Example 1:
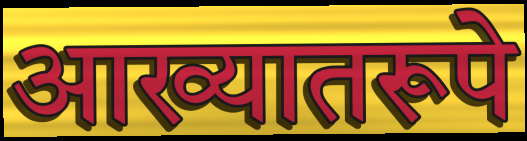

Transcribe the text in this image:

आख्यातरूपे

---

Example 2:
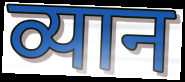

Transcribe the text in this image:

व्यान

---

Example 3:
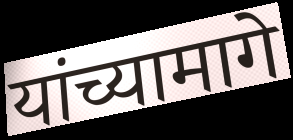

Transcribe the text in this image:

यांच्यामागे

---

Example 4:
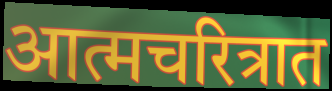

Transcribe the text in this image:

आत्मचरित्रात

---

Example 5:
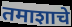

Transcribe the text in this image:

तमाशाचे